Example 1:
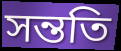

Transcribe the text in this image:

সন্ততি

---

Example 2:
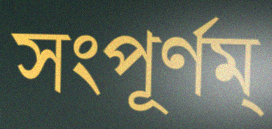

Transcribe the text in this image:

সংপূর্ণম্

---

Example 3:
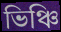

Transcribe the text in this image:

ভিঞ্চি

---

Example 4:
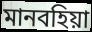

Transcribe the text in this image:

মানবহিয়া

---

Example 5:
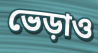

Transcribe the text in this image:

ভেড়াও